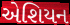
એશિયન